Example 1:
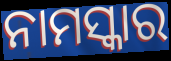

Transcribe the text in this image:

ନାମସ୍କାର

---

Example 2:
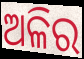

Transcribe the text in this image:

ଅଳିର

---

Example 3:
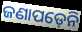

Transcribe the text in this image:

ଜଣାପଡ଼େନି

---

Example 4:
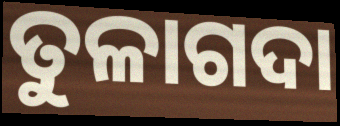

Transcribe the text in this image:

ତୁଳାଗଦା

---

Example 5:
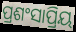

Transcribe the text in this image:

ପ୍ରଶଂସାପ୍ରିୟ